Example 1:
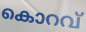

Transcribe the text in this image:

കൊറവ്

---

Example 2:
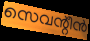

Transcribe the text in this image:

സെവന്റീൻ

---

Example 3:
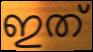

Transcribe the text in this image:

ഇത്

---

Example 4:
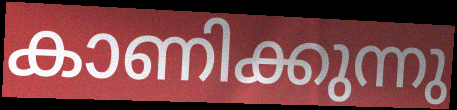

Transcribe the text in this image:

കാണിക്കുന്നു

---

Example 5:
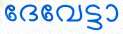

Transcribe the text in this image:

ദേവേട്ടാ